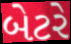
બેટરે